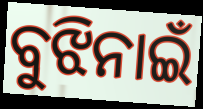
ବୁଝିନାଇଁ